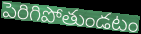
పెరిగిపోతుండటం